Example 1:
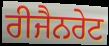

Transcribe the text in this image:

ਰੀਜੈਨਰੇਟ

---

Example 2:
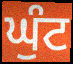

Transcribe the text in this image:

ਘੁੰਟ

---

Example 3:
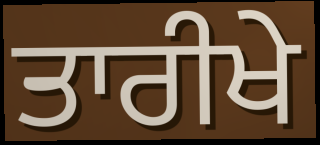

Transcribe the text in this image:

ਤਾਰੀਖੇ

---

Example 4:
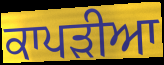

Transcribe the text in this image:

ਕਾਪੜੀਆ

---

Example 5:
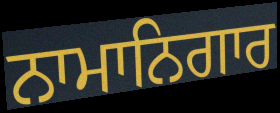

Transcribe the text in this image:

ਨਾਮਾਨਿਗਾਰ